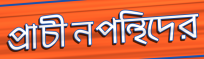
প্রাচীনপন্থিদের